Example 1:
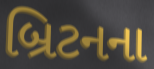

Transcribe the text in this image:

બ્રિટનના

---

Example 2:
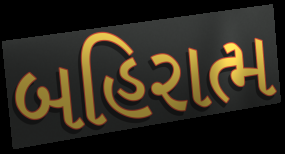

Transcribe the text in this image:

બહિરાત્મ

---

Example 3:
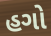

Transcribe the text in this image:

હગો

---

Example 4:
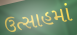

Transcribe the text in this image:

ઉત્સાહમાં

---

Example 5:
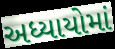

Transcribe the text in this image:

અધ્યાયોમાં